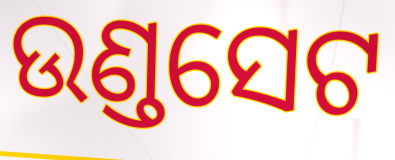
ଉଣ୍ଡସେଟ